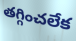
తగ్గించలేక